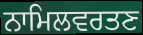
ਨਾਮਿਲਵਰਤਣ